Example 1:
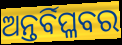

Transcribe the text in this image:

ଅନ୍ତର୍ବିପ୍ଳବର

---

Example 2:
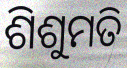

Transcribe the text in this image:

ଶିଶୁମତି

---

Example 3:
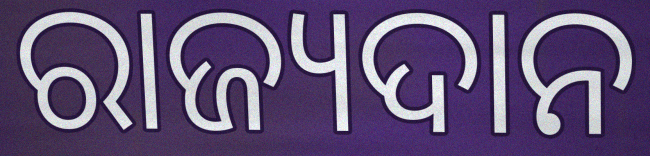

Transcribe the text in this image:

ରାଜ୍ୟଦାନ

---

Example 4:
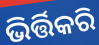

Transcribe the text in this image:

ଭିର୍ତ୍ତିକରି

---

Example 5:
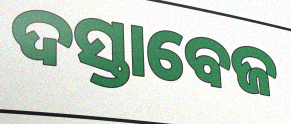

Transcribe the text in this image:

ଦସ୍ତାବେଜ